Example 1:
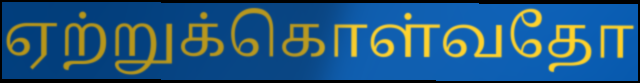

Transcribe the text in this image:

ஏற்றுக்கொள்வதோ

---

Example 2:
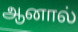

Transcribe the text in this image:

ஆனால்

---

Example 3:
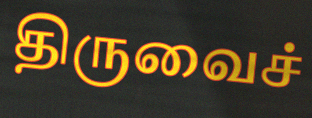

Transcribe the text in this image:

திருவைச்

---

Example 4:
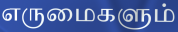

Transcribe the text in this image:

எருமைகளும்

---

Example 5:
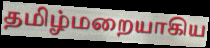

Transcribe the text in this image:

தமிழ்மறையாகிய